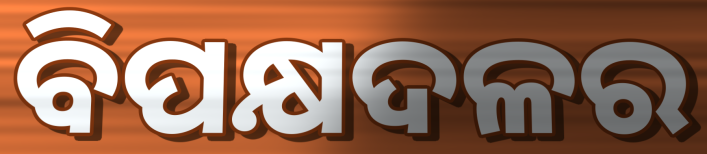
ବିପକ୍ଷଦଳର